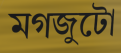
মগজুটো